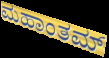
ಮಹಾಂತಮ್